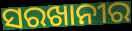
ସରଖାନୀର